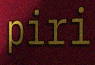
piri